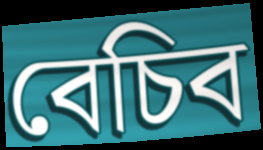
বেচিব